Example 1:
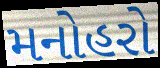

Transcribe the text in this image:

મનોહરો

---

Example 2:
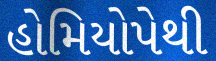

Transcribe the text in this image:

હોમિયોપેથી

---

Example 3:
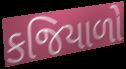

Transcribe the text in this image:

કજિયાળો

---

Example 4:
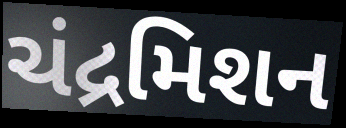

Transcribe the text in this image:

ચંદ્રમિશન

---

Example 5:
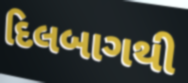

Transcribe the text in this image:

દિલબાગથી